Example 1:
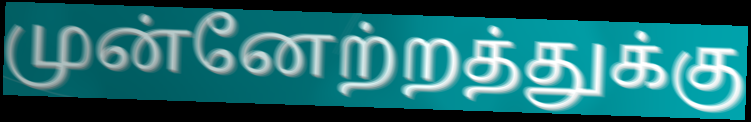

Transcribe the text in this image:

முன்னேற்றத்துக்கு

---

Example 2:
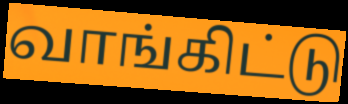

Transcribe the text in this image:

வாங்கிட்டு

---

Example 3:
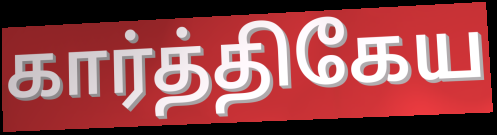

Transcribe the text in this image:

கார்த்திகேய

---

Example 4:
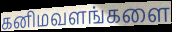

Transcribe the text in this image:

கனிமவளங்களை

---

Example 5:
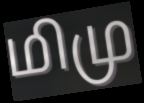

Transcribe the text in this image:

மிமு